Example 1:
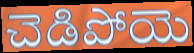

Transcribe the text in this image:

చెడిపోయె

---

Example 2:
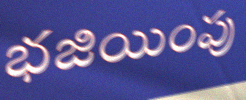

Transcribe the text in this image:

భజియింపు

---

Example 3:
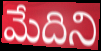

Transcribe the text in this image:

మేదిని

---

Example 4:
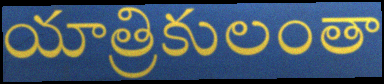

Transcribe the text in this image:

యాత్రికులంతా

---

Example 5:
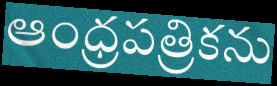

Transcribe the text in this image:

ఆంధ్రపత్రికను